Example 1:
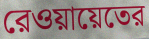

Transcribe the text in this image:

রেওয়ায়েতের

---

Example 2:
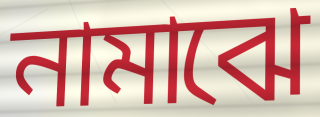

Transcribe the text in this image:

নামাঝে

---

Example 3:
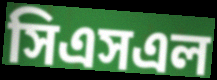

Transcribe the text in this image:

সিএসএল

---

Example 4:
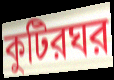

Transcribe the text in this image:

কুটিরঘর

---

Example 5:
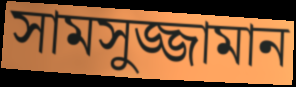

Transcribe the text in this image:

সামসুজ্জামান